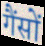
गैंसों